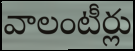
వాలంటీర్లు